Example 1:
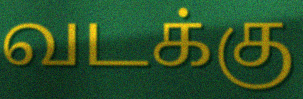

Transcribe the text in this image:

வடக்கு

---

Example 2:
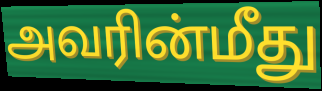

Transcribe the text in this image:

அவரின்மீது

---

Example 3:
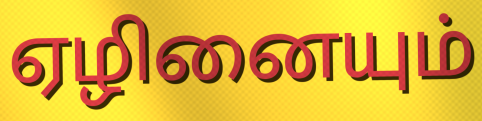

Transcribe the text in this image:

ஏழினையும்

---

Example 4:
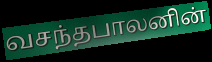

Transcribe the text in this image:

வசந்தபாலனின்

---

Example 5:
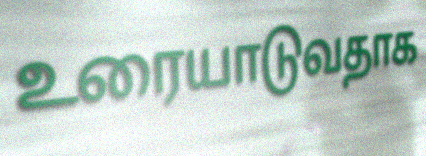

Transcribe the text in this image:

உரையாடுவதாக